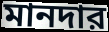
মানদার